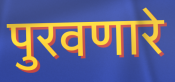
पुरवणारे